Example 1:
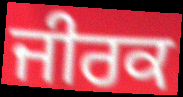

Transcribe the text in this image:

ਜੀਰਕ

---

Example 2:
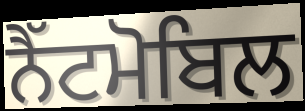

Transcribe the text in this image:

ਨੈੱਟਮੋਬਿਲ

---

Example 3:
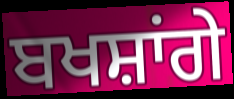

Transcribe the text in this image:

ਬਖਸ਼ਾਂਗੇ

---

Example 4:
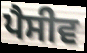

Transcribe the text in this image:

ਪੈਸੀਵ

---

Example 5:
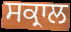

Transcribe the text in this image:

ਸਕ੍ਰਾਲ